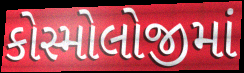
કોસ્મોલોજીમાં